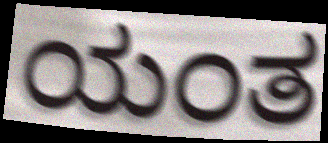
ಯಂತ